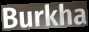
Burkha